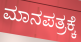
ಮಾನಪತ್ರಕ್ಕೆ